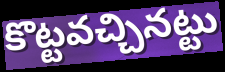
కొట్టవచ్చినట్టు